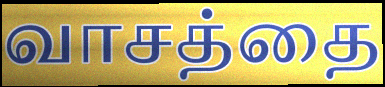
வாசத்தை